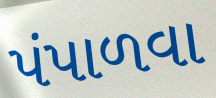
પંપાળવા